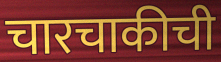
चारचाकीची